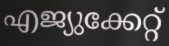
എജ്യുക്കേറ്റ്